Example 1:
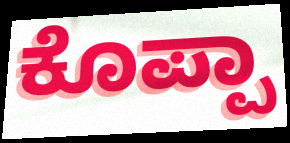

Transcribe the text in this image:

ಕೊಪ್ಪಾ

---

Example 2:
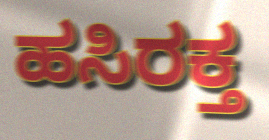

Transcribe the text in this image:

ಹಸಿರಕ್ತ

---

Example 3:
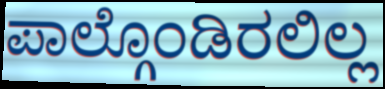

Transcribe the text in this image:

ಪಾಲ್ಗೊಂಡಿರಲಿಲ್ಲ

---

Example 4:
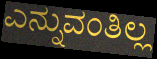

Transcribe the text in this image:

ಎನ್ನುವಂತಿಲ್ಲ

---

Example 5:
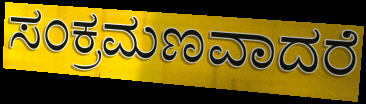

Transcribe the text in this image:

ಸಂಕ್ರಮಣವಾದರೆ